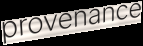
provenance